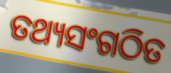
ତଥ୍ୟସଂଗଠିତ